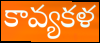
కావ్యకళ